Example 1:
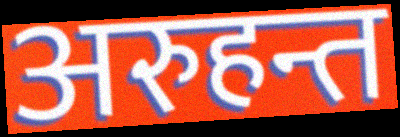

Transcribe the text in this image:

अरुहन्त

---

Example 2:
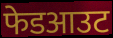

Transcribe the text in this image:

फेडआउट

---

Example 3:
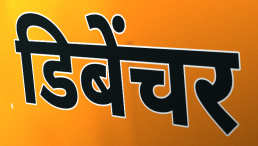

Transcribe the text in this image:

डिबेंचर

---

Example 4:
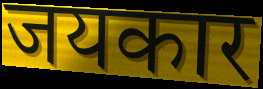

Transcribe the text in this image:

जयकार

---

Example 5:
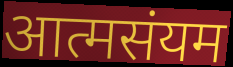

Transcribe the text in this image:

आत्मसंयम